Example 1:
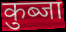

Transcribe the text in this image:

कुब्जा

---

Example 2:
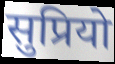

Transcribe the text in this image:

सुप्रियो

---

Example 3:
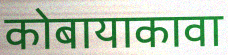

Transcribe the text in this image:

कोबायाकावा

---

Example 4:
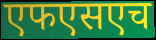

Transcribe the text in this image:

एफएसएच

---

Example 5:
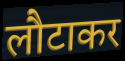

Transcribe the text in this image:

लौटाकर